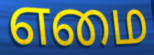
எமை